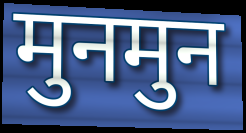
मुनमुन